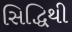
સિદ્ધિથી